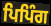
ਪਿਪਿੰਗ